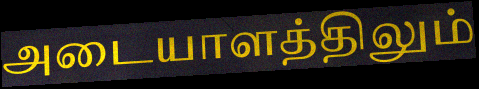
அடையாளத்திலும்